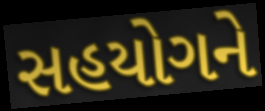
સહયોગને